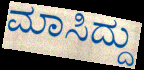
ಮಾಸಿದ್ದು